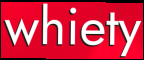
whiety